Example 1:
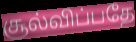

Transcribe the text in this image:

சூல்விப்பதே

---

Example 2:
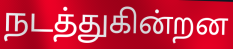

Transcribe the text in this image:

நடத்துகின்றன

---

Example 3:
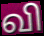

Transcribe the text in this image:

வி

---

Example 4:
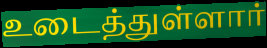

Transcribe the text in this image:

உடைத்துள்ளார்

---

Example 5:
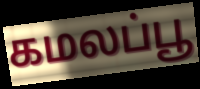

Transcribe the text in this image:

கமலப்பூ